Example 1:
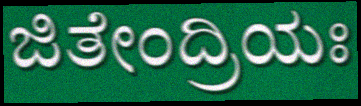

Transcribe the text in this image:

ಜಿತೇಂದ್ರಿಯಃ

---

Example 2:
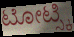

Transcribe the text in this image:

ಟೋಟ್ಸ್ಕಿ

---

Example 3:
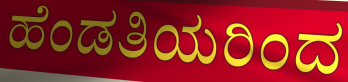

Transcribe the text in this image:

ಹೆಂಡತಿಯರಿಂದ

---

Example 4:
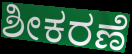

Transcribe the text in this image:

ಶೀಕರಣೆ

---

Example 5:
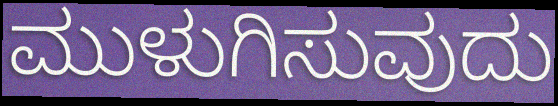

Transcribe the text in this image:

ಮುಳುಗಿಸುವುದು